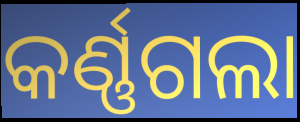
କର୍ଣ୍ଣଗଲା